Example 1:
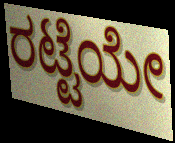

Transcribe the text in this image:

ರಟ್ಟೆಯೇ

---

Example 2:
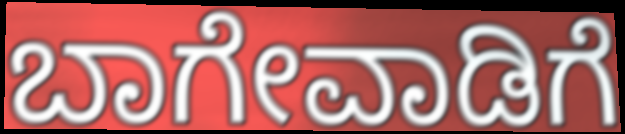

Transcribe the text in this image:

ಬಾಗೇವಾಡಿಗೆ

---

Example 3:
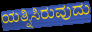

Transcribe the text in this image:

ಯತ್ನಿಸಿರುವುದು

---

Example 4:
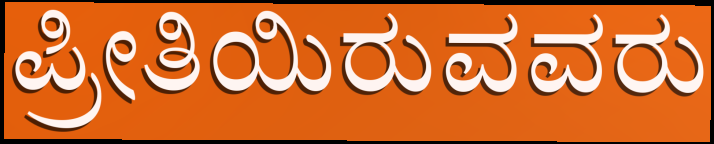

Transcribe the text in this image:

ಪ್ರೀತಿಯಿರುವವರು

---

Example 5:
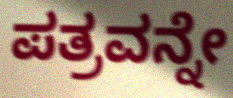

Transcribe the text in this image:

ಪತ್ರವನ್ನೇ